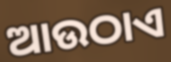
ଆଉଠାଏ